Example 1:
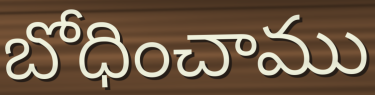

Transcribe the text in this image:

బోధించాము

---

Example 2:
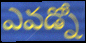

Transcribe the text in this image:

ఎవడ్నో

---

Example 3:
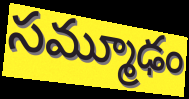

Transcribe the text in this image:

సమ్మూఢం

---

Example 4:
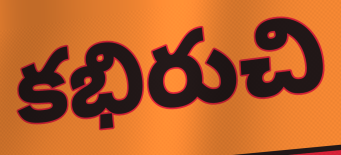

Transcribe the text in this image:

కభిరుచి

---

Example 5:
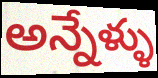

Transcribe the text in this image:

అన్నేళ్ళు